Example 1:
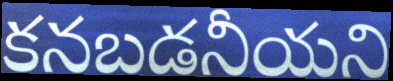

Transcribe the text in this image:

కనబడనీయని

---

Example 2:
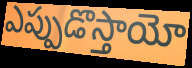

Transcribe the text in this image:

ఎప్పుడొస్తాయో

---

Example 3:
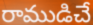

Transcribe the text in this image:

రాముడిచే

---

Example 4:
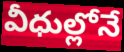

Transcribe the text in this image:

వీధుల్లోనే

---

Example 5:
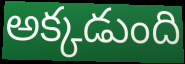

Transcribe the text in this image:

అక్కడుంది